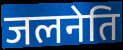
जलनेति